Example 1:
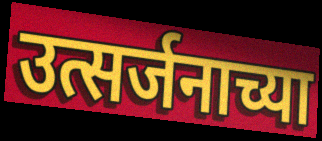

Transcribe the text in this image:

उत्सर्जनाच्या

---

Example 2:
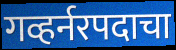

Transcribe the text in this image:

गव्हर्नरपदाचा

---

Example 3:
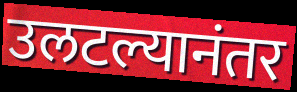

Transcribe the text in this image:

उलटल्यानंतर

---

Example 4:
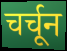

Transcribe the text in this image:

चर्चून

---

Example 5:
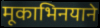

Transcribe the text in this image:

मूकाभिनयाने